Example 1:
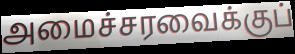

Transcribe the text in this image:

அமைச்சரவைக்குப்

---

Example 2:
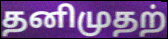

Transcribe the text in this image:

தனிமுதற்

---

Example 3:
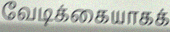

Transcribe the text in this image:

வேடிக்கையாகக்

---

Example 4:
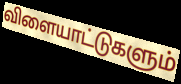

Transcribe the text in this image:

விளையாட்டுகளும்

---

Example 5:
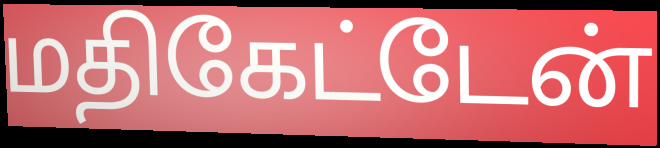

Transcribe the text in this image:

மதிகேட்டேன்